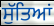
ਸੁੱਤਿਆਂ